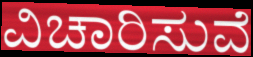
ವಿಚಾರಿಸುವೆ